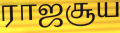
ராஜசூய